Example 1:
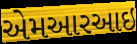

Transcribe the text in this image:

એમઆરઆઇ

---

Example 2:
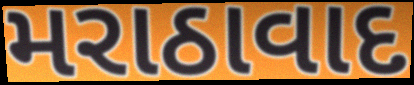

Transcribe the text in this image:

મરાઠાવાદ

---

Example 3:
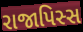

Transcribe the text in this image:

રાજાપિસ્સ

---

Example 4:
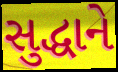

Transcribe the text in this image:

સુદ્ધાને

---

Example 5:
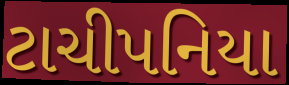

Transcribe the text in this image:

ટાચીપનિયા